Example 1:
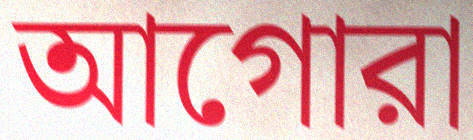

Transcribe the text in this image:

আগোরা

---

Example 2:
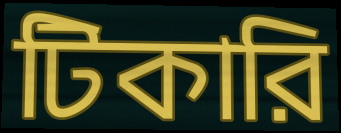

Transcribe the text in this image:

টিকারি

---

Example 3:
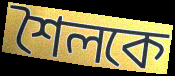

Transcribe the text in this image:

শৈলকে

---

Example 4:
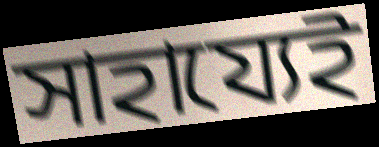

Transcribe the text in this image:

সাহায্যেই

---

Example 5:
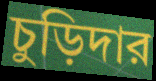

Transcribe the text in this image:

চুড়িদার